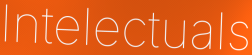
Intelectuals